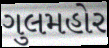
ગુલમહોર